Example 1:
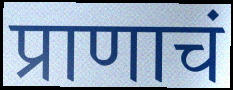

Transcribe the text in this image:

प्राणाचं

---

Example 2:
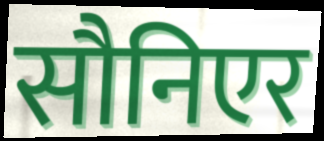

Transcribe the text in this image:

सौनिएर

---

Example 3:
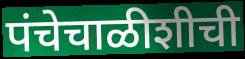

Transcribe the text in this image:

पंचेचाळीशीची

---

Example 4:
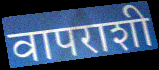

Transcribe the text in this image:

वापराशी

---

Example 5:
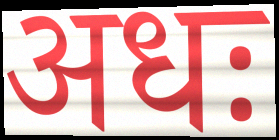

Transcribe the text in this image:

अधः